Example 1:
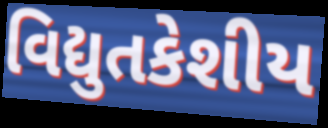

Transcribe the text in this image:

વિદ્યુતકેશીય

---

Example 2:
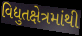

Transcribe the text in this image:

વિદ્યુતક્ષેત્રમાંથી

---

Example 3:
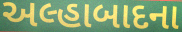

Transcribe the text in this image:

અલ્હાબાદના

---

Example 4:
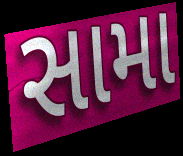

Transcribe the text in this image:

સામા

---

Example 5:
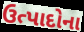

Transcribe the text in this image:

ઉત્પાદોના